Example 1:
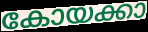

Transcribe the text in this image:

കോയക്കാ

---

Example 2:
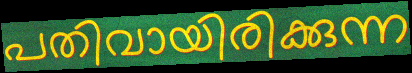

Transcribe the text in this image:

പതിവായിരിക്കുന്ന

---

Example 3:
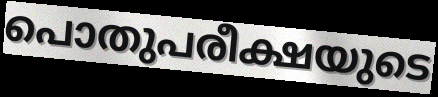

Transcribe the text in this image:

പൊതുപരീക്ഷയുടെ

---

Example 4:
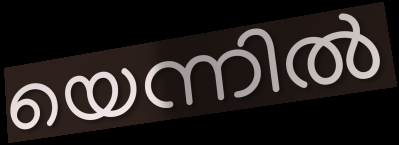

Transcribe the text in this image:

യെന്നിൽ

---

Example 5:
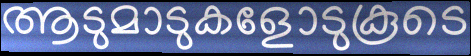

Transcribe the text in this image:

ആടുമാടുകളോടുകൂടെ